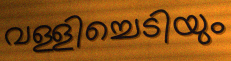
വള്ളിച്ചെടിയും